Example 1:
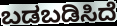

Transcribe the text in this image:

ಬಡಬಡಿಸಿದೆ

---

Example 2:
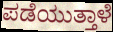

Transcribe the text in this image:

ಪಡೆಯುತ್ತಾಳೆ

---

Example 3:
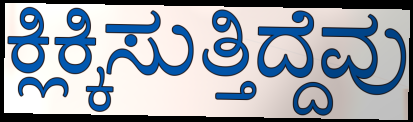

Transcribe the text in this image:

ಕ್ಲಿಕ್ಕಿಸುತ್ತಿದ್ದೆವು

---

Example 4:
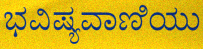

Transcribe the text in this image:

ಭವಿಷ್ಯವಾಣಿಯು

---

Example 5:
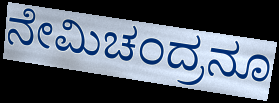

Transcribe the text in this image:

ನೇಮಿಚಂದ್ರನೂ